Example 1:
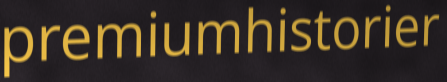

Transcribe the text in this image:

premiumhistorier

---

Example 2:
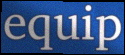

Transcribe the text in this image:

equip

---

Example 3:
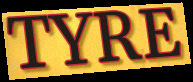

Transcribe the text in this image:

TYRE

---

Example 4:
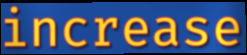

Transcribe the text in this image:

increase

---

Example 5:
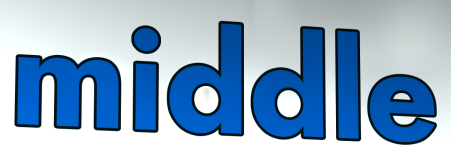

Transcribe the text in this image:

middle